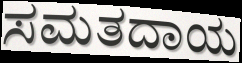
ಸಮತದಾಯ